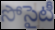
సోసైటీ